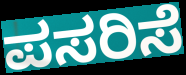
ಪಸರಿಸೆ